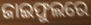
ଜାଇଫୁଲରେ